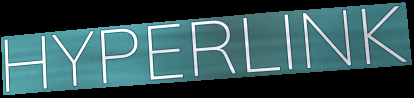
HYPERLINK